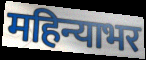
महिन्याभर